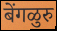
बेंगळुरु